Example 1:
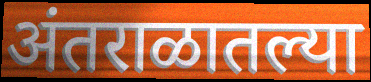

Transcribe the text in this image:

अंतराळातल्या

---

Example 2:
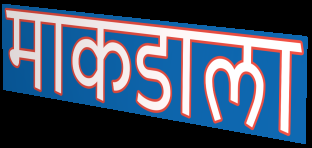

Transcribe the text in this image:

माकडाला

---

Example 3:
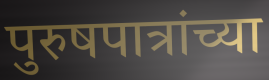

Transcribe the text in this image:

पुरुषपात्रांच्या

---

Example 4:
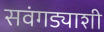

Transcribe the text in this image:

सवंगड्याशी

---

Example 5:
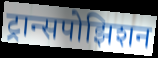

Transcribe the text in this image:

ट्रान्सपोझिशन